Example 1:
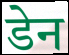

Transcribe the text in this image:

डेन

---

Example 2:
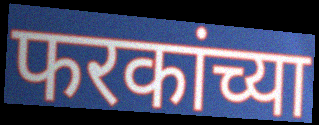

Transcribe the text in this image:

फरकांच्या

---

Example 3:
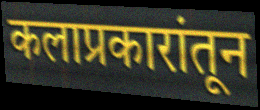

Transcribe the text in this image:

कलाप्रकारांतून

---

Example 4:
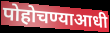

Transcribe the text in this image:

पोहोचण्याआधी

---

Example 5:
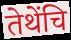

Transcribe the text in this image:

तेथेंचि